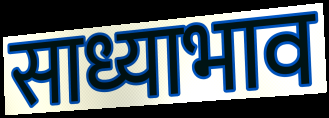
साध्याभाव